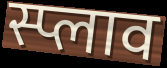
स्प्लाव